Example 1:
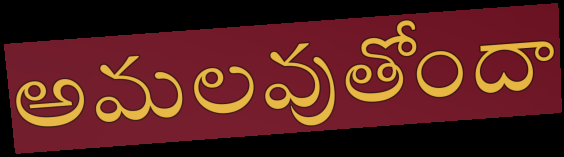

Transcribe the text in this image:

అమలవుతోందా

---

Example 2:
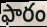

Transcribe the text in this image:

ఫారం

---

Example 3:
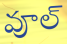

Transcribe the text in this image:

వూల్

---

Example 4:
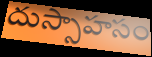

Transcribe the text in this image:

దుస్సాహసం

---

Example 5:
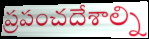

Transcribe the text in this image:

ప్రపంచదేశాల్ని